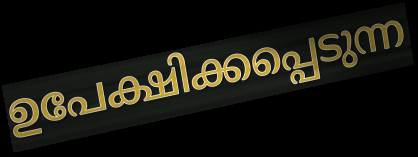
ഉപേക്ഷിക്കപ്പെടുന്ന